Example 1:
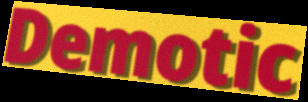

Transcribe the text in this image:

Demotic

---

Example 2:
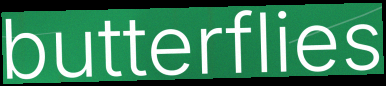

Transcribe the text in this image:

butterflies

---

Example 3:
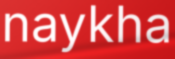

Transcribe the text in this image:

naykha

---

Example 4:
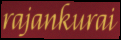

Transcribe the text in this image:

rajankurai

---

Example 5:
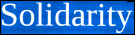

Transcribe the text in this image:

Solidarity